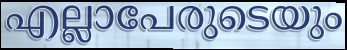
എല്ലാപേരുടെയും